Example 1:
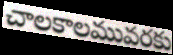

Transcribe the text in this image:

చాలకాలమువరకు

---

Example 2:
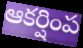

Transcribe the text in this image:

ఆకర్షింప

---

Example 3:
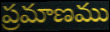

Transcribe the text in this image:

ప్రమాణము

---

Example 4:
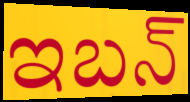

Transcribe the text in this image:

ఇబన్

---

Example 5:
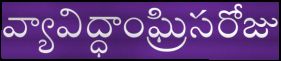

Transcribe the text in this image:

వ్యావిద్ధాంఘ్రిసరోజు